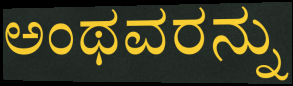
ಅಂಥವರನ್ನು